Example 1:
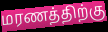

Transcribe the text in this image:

மரணத்திற்கு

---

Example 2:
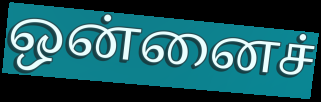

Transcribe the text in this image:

ஒன்னைச்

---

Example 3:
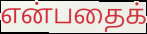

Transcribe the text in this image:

என்பதைக்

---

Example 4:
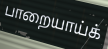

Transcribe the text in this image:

பாறையாய்க்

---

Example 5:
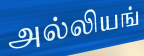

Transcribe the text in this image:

அல்லியங்